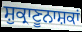
ਸ਼ੁਕ੍ਰਾਣੂਨਾਸ਼ਕਾਂ